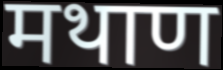
मथाण